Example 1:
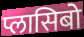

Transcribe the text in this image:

प्लासिबो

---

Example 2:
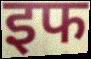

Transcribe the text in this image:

इफ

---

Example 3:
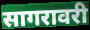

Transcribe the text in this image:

सागरावरी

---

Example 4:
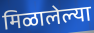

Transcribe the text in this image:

मिळालेल्या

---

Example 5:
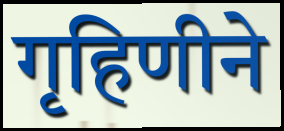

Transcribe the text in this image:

गृहिणीने